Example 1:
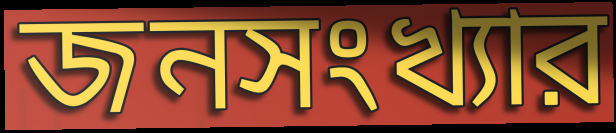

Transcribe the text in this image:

জনসংখ্যার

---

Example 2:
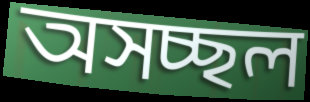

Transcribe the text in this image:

অসচ্ছল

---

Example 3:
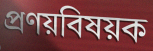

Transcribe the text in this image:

প্রণয়বিষয়ক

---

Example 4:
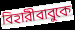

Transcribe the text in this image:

বিহারীবাবুকে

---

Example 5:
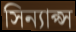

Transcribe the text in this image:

সিন্যাপ্স